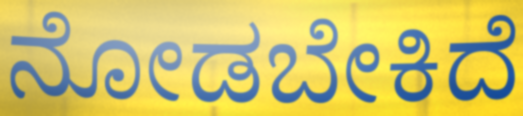
ನೋಡಬೇಕಿದೆ